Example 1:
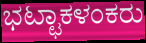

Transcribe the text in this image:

ಭಟ್ಟಾಕಳಂಕರು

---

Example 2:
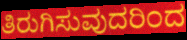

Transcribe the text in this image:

ತಿರುಗಿಸುವುದರಿಂದ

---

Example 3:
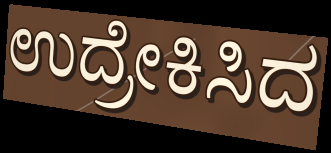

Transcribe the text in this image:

ಉದ್ರೇಕಿಸಿದ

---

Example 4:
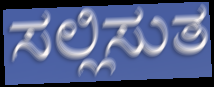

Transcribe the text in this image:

ಸಲ್ಲಿಸುತ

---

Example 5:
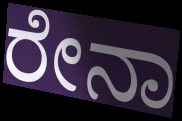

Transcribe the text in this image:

ರೇನಾ